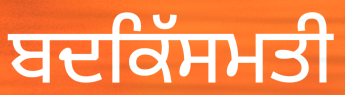
ਬਦਕਿੱਸਮਤੀ